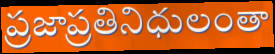
ప్రజాప్రతినిధులంతా